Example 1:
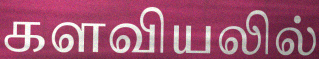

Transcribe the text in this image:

களவியலில்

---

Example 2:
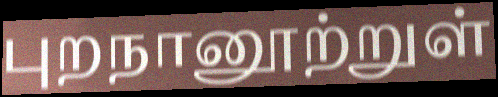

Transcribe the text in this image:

புறநானூற்றுள்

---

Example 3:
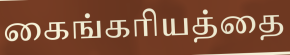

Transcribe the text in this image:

கைங்கரியத்தை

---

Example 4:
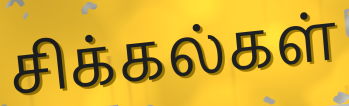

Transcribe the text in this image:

சிக்கல்கள்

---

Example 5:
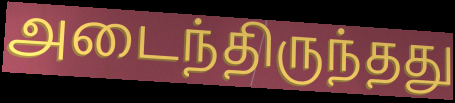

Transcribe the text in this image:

அடைந்திருந்தது